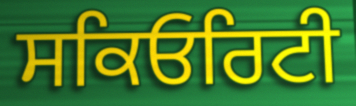
ਸਕਿਓਰਿਟੀ